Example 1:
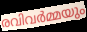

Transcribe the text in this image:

രവിവർമ്മയും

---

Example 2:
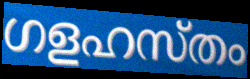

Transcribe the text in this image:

ഗളഹസ്തം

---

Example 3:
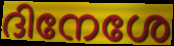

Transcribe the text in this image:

ദിനേശേ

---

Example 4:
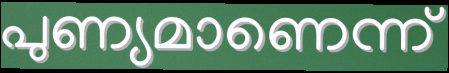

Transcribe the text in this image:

പുണ്യമാണെന്ന്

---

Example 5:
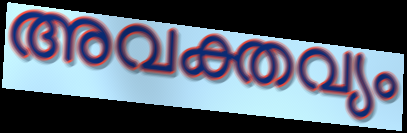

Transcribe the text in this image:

അവക്തവ്യം